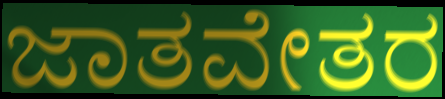
ಜಾತವೇತರ